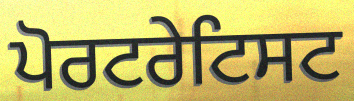
ਪੋਰਟਰੇਟਿਸਟ